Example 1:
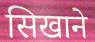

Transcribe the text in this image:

सिखाने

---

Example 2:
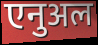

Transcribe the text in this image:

एनुअल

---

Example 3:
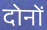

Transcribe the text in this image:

दोनों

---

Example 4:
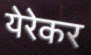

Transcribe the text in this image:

येरेकर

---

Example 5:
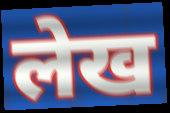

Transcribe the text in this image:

लेख